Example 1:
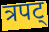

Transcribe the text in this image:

त्रपट्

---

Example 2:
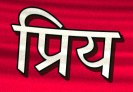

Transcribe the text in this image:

प्रिय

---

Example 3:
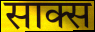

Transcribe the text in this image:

साक्स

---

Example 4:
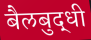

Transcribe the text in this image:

बैलबुद्धी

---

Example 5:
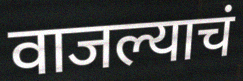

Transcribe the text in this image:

वाजल्याचं